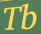
Tb